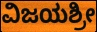
ವಿಜಯಶ್ರೀ